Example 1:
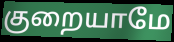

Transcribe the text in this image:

குறையாமே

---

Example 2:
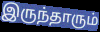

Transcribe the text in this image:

இருந்தாரும்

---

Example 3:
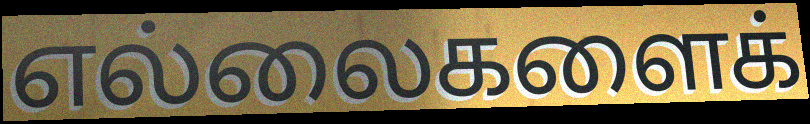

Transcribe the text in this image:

எல்லைகளைக்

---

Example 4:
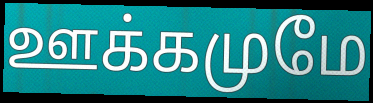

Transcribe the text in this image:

ஊக்கமுமே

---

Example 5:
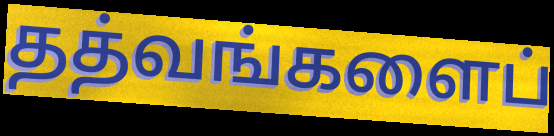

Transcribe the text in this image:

தத்வங்களைப்